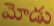
మోడు